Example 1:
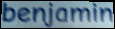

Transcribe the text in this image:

benjamin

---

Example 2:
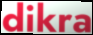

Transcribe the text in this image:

dikra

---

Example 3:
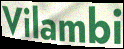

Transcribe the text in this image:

Vilambi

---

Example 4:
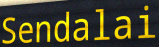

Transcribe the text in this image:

Sendalai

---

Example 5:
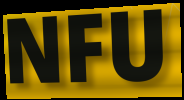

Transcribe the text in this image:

NFU